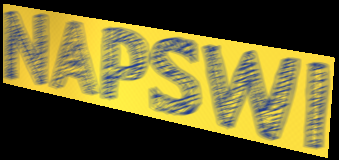
NAPSWI